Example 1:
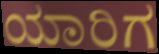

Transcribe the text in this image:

ಯಾರಿಗ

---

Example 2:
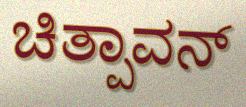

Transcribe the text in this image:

ಚಿತ್ಪಾವನ್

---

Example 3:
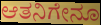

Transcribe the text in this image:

ಆತನಿಗೇನೂ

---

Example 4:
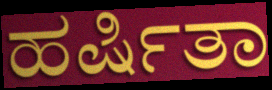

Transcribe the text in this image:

ಹರ್ಷಿತಾ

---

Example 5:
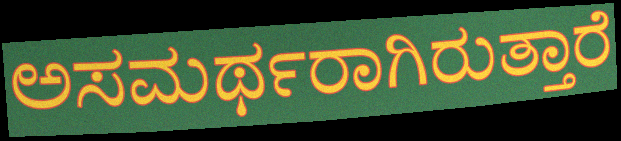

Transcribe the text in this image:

ಅಸಮರ್ಥರಾಗಿರುತ್ತಾರೆ